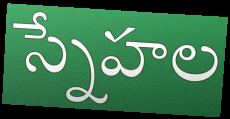
స్నేహల